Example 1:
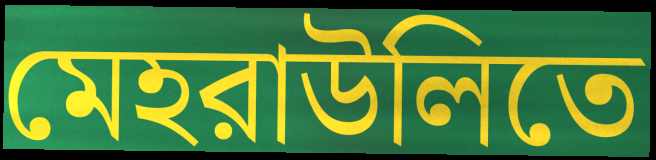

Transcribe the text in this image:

মেহরাউলিতে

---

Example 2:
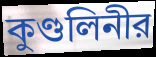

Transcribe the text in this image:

কুণ্ডলিনীর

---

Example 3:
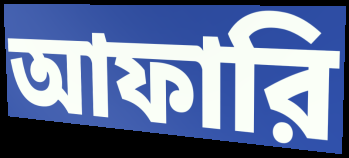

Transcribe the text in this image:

আফারি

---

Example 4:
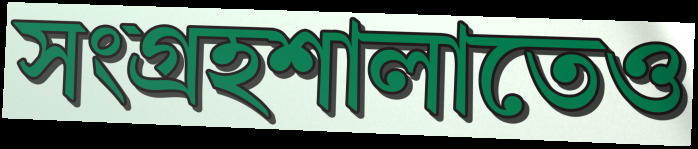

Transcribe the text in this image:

সংগ্রহশালাতেও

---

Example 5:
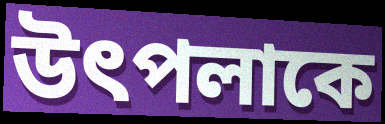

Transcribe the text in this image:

উৎপলাকে